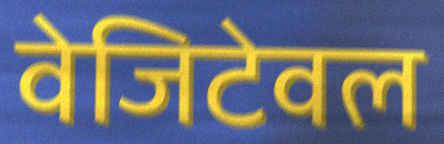
वेजिटेवल